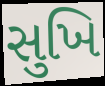
સુખિ